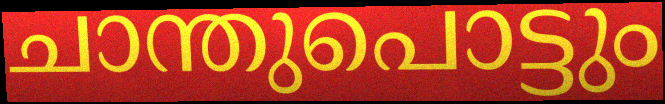
ചാന്തുപൊട്ടും